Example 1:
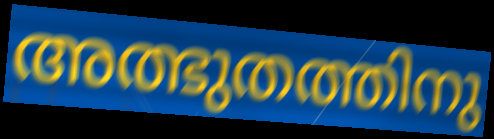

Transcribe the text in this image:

അത്ഭുതത്തിനു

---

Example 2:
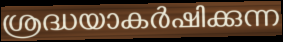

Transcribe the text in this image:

ശ്രദ്ധയാകർഷിക്കുന്ന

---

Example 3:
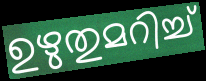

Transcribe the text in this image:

ഉഴുതുമറിച്ച്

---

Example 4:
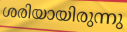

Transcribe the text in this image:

ശരിയായിരുന്നു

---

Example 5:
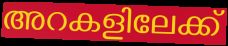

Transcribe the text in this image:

അറകളിലേക്ക്